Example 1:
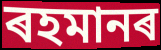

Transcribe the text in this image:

ৰহমানৰ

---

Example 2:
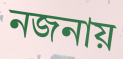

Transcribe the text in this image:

নজনায়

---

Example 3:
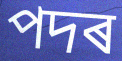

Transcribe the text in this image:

পদৰ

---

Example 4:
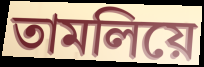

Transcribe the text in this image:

তামলিয়ে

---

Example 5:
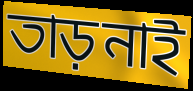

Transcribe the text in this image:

তাড়নাই